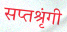
सप्तश्रृंगी